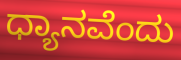
ಧ್ಯಾನವೆಂದು